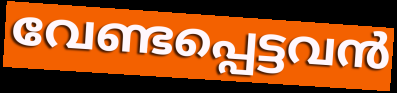
വേണ്ടപ്പെട്ടവൻ